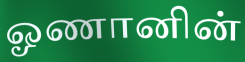
ஓணானின்